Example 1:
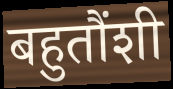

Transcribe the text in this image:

बहुतौंशी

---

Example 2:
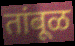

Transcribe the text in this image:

तांबूळ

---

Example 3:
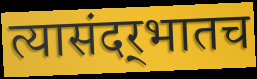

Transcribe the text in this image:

त्यासंदर्भातच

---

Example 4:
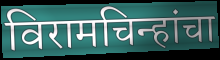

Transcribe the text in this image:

विरामचिन्हांचा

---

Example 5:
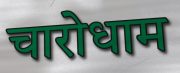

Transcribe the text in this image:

चारोधाम